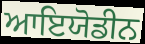
ਆਇਯੋਡੀਨ